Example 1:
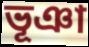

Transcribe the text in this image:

ভূঞা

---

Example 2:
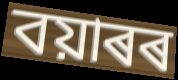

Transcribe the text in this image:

বয়াৰৰ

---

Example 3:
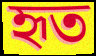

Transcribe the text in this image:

হৃত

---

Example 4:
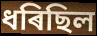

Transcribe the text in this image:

ধৰিছিল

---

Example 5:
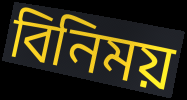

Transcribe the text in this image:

বিনিময়